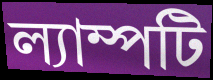
ল্যাম্পটি